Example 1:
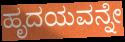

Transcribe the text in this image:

ಹೃದಯವನ್ನೇ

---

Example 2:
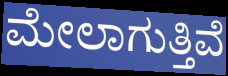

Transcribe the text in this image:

ಮೇಲಾಗುತ್ತಿವೆ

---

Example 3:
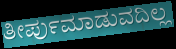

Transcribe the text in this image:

ತೀರ್ಪುಮಾಡುವದಿಲ್ಲ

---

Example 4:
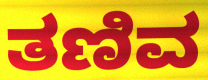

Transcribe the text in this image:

ತಣಿವ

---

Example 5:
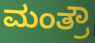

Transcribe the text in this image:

ಮಂತ್ರೌ